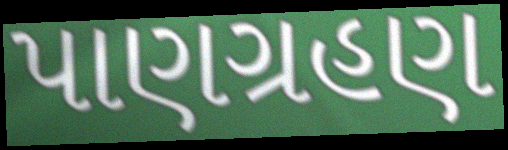
પાણગ્રહણ